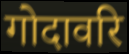
गोदावरि